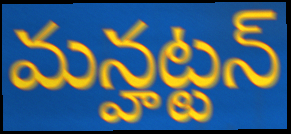
మన్హట్టన్